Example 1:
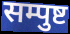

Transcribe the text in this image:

सम्पुष्ट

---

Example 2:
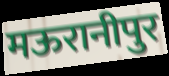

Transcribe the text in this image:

मऊरानीपुर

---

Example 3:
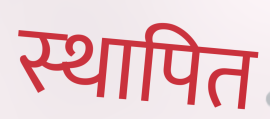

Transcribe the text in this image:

स्‍थापित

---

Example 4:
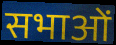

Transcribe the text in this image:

सभाओं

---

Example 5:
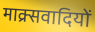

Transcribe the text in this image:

माक्र्सवादियों